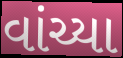
વાંચ્યા